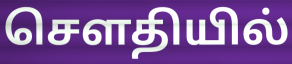
செளதியில்